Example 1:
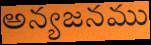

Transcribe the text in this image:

అన్యజనము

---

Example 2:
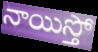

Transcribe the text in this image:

నాయిస్తో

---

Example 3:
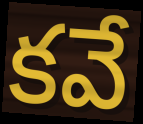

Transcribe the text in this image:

కవే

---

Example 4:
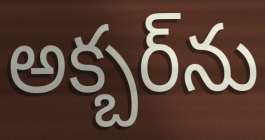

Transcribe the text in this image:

అక్బర్‌ను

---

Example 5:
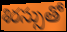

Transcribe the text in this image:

శిరస్సుతో